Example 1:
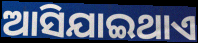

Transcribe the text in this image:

ଆସିଯାଇଥାଏ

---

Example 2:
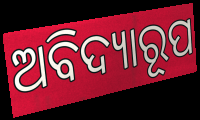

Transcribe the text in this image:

ଅବିଦ୍ୟାରୂପ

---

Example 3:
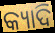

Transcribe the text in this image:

କ୍ୟାଦି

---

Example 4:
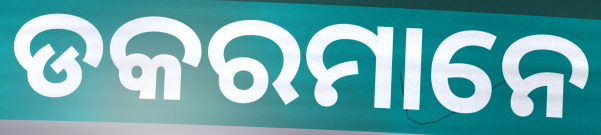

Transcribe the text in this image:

ଡକରମାନେ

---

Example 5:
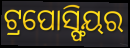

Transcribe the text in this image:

ଟ୍ରପୋସ୍ଫିୟର